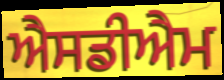
ਐਸਡੀਐਮ